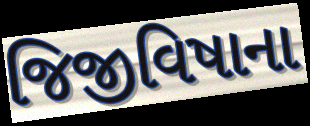
જિજીવિષાના